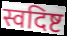
स्वदिष्ट